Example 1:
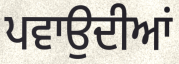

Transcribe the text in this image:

ਪਵਾਉਦੀਆਂ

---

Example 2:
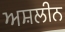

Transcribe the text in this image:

ਅਸ਼ਲੀਨ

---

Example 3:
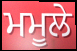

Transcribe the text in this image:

ਮਮੂਲੇ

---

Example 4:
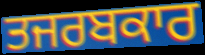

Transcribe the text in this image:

ਤਜਰਬਕਾਰ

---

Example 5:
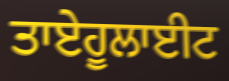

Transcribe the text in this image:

ਤਾਏਹੂਲਾਈਟ